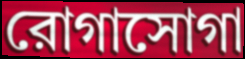
রোগাসোগা